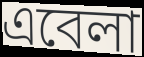
এবেলা